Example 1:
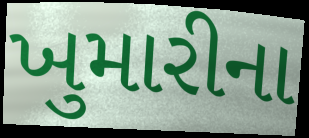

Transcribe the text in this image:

ખુમારીના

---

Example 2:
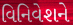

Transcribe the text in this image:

વિનિવેશને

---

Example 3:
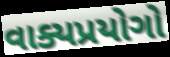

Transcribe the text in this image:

વાક્યપ્રયોગો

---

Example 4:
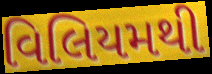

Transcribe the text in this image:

વિલિયમથી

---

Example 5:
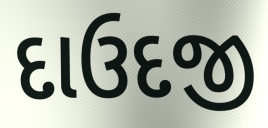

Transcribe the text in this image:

દાઉદજી